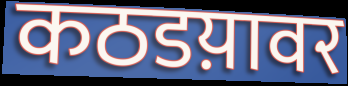
कठडय़ावर